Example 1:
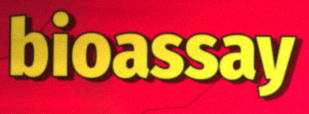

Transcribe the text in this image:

bioassay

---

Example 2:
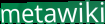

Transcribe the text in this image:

metawiki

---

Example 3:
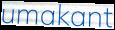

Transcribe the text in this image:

umakant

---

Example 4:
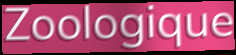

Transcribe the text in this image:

Zoologique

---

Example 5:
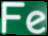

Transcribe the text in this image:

Fe